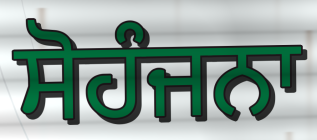
ਸੋਹੰਜਨਾ